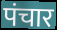
पंचार